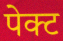
पेक्ट